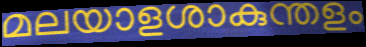
മലയാളശാകുന്തളം